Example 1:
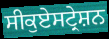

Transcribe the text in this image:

ਸੀਕੁਏਸਟ੍ਰੇਸ਼ਨ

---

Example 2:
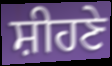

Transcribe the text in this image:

ਸ਼ੀਹਣੇ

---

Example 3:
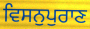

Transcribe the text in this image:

ਵਿਸਨੁਪੁਰਾਣ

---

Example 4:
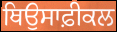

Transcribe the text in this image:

ਥਿਉਸਾਫ਼ੀਕਲ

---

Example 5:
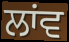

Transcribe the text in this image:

ਲਾਂਵ